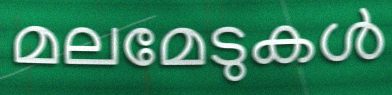
മലമേടുകൾ